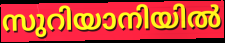
സുറിയാനിയിൽ